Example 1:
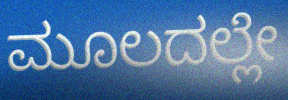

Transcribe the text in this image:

ಮೂಲದಲ್ಲೇ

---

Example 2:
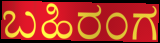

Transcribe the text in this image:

ಬಹಿರಂಗ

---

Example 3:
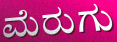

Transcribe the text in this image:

ಮೆರುಗು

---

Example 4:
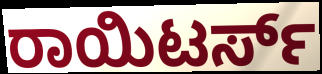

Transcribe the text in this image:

ರಾಯಿಟರ್ಸ್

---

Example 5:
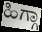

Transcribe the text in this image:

ಹಿಗ್ಗಾ